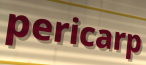
pericarp